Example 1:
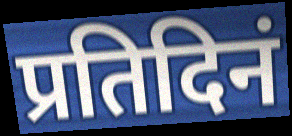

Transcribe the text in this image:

प्रतिदिनं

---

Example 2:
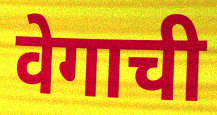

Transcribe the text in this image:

वेगाची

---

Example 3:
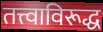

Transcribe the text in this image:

तत्त्वाविरूद्ध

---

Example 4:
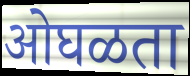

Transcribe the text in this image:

ओघळता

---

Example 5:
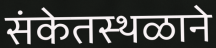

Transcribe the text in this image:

संकेतस्थळाने